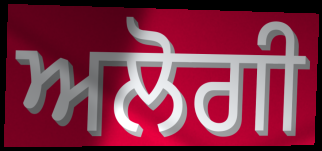
ਅਲੋਗੀ